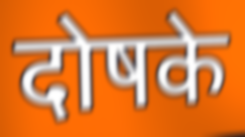
दोषके